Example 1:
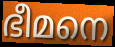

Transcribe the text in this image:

ഭീമനെ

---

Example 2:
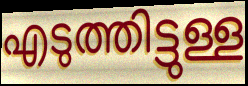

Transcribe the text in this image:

എടുത്തിട്ടുള്ള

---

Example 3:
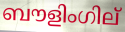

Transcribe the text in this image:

ബൗളിംഗില്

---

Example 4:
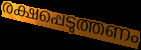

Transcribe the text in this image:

രക്ഷപ്പെടുത്തണം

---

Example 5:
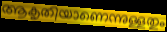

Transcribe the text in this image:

ആകൃതിയാണെന്നുള്ളതും